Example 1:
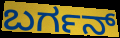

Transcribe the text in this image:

ಬರ್ಗನ್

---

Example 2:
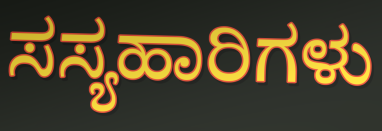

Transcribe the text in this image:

ಸಸ್ಯಹಾರಿಗಳು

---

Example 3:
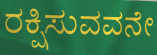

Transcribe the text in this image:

ರಕ್ಷಿಸುವವನೇ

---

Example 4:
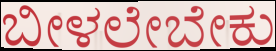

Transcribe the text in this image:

ಬೀಳಲೇಬೇಕು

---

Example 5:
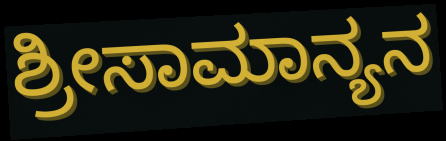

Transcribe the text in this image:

ಶ್ರೀಸಾಮಾನ್ಯನ